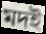
মদই